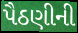
પૈઠણીની